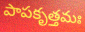
పాపకృత్తమః